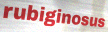
rubiginosus